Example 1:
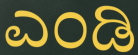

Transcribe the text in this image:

ಎಂಡಿ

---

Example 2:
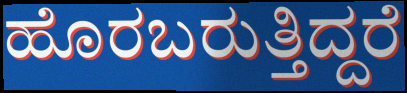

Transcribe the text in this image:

ಹೊರಬರುತ್ತಿದ್ದರೆ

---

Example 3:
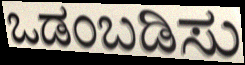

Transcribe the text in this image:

ಒಡಂಬಡಿಸು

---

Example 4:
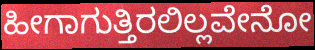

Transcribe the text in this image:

ಹೀಗಾಗುತ್ತಿರಲಿಲ್ಲವೇನೋ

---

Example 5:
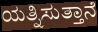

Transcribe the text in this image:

ಯತ್ನಿಸುತ್ತಾನೆ